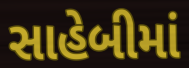
સાહેબીમાં